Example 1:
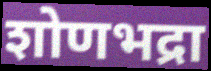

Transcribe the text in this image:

शोणभद्रा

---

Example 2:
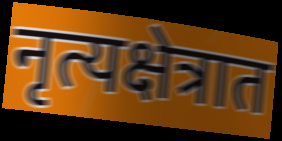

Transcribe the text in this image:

नृत्यक्षेत्रात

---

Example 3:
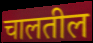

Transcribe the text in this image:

चालतील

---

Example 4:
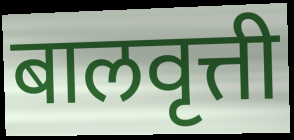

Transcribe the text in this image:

बालवृत्ती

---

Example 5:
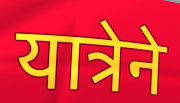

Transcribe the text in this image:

यात्रेने